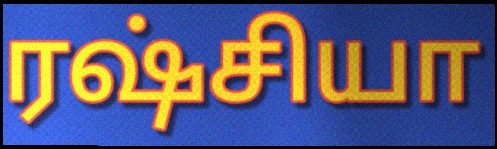
ரஷ்சியா